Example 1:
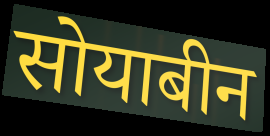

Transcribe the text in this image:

सोयाबीन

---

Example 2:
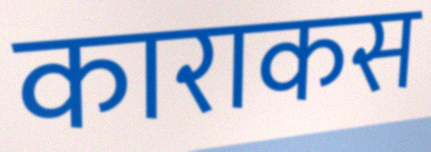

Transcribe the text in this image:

काराकस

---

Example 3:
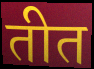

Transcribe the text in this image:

तीत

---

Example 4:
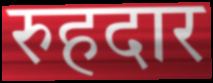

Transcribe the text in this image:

रुहदार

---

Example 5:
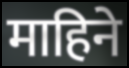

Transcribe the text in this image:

माहिने